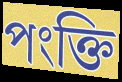
পংক্তি